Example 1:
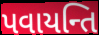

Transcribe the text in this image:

પવાયન્તિ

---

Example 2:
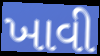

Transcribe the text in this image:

ખાવી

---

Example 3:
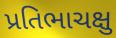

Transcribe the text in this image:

પ્રતિભાચક્ષુ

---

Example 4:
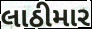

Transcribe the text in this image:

લાઠીમાર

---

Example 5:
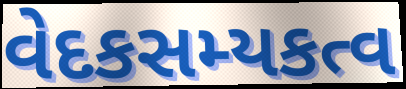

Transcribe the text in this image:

વેદકસમ્યકત્વ